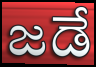
జడే